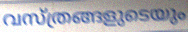
വസ്ത്രങ്ങളുടെയും